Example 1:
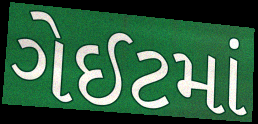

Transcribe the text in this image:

ગેઈટમાં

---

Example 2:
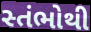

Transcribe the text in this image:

સ્તંભોથી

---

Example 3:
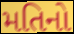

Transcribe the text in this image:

મતિનો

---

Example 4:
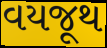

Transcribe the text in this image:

વયજૂથ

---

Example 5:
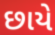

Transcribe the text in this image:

છાયે